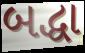
બદ્ધા